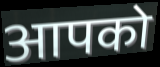
आपको